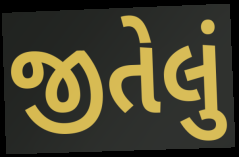
જીતેલું